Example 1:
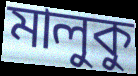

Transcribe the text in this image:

মালুকু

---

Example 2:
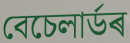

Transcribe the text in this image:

বেচেলাৰ্ডৰ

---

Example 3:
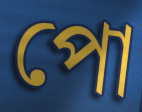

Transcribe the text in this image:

পো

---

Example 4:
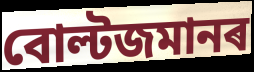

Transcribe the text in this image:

বোল্টজমানৰ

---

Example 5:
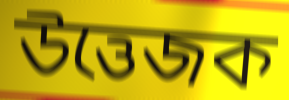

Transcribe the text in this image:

উত্তেজক